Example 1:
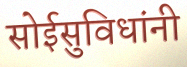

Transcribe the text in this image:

सोईसुविधांनी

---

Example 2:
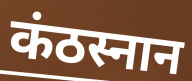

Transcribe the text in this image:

कंठस्नान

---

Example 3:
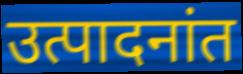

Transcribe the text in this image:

उत्पादनांत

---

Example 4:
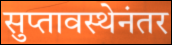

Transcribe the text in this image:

सुप्तावस्थेनंतर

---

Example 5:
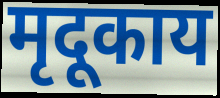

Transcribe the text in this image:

मृदूकाय